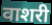
वाशरी